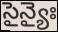
సైన్యైః